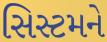
સિસ્ટમને